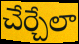
చేర్చేలా